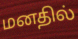
மனதில்